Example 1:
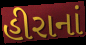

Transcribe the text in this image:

હીરાનાં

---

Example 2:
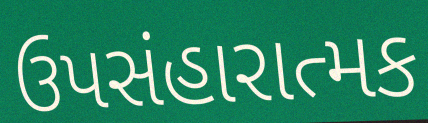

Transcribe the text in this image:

ઉપસંહારાત્મક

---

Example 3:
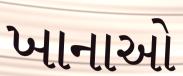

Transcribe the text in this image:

ખાનાઓ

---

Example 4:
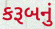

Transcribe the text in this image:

કરૂબનું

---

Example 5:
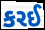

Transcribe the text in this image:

કરઈ